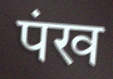
पंख